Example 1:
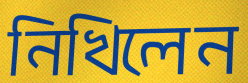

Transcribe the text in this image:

নিখিলেন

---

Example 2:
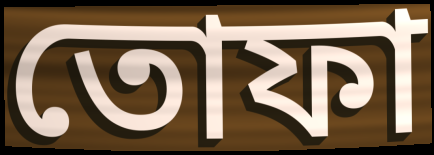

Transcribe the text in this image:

তোফা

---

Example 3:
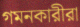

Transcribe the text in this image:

গমনকারীরা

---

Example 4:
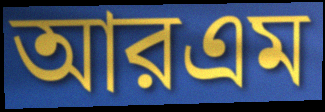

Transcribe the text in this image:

আরএম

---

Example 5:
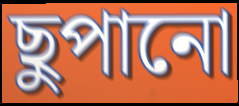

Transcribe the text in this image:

ছুপানো